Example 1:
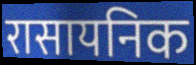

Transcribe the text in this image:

रासायनिक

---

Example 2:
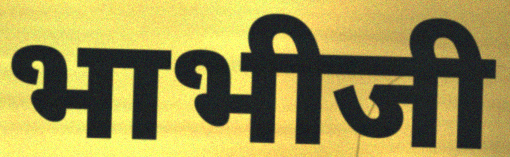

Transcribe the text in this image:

भाभीजी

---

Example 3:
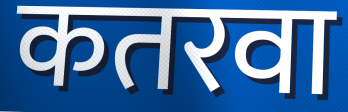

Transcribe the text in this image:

कतरवा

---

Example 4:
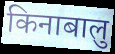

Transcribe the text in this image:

किनाबालु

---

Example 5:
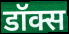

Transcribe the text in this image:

डॉक्स